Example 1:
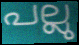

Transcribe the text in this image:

പല്ലു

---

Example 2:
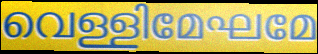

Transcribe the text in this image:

വെള്ളിമേഘമേ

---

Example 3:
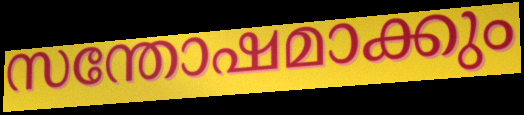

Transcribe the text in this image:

സന്തോഷമാക്കും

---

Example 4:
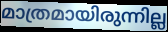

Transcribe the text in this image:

മാത്രമായിരുന്നില്ല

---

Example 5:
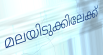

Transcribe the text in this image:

മലയിടുക്കിലേക്ക്